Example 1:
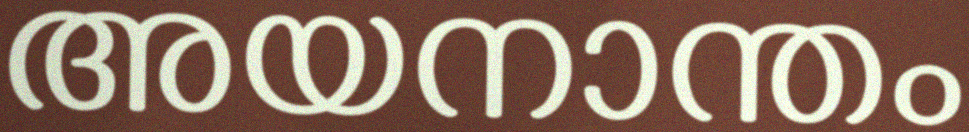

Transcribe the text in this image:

അയനാന്തം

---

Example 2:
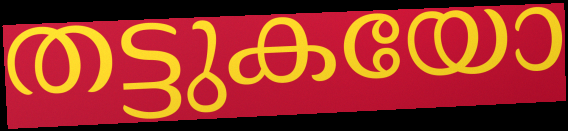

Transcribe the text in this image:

തട്ടുകയോ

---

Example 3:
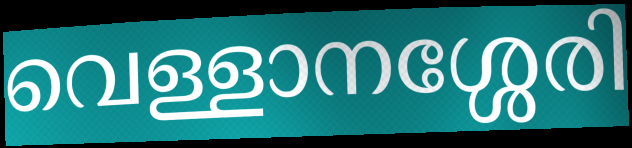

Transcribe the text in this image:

വെള്ളാനശ്ശേരി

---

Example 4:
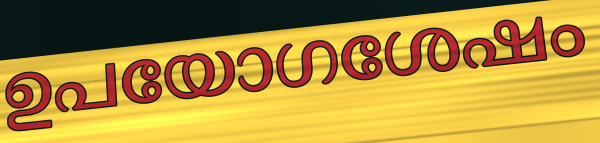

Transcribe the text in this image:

ഉപയോഗശേഷം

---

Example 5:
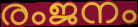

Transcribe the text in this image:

രംജനം